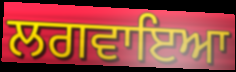
ਲਗਵਾਇਆ